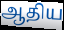
ஆதிய